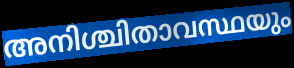
അനിശ്ചിതാവസ്ഥയും